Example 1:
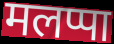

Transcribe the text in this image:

मलप्पा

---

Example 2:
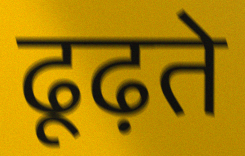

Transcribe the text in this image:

ढूढ़ते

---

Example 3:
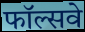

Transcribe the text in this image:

फॉल्सवे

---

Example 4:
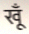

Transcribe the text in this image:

खूँ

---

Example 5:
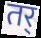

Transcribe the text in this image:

तर्